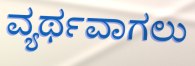
ವ್ಯರ್ಥವಾಗಲು